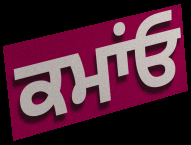
ਕਮਾਂਓ